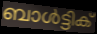
ബാൾട്ടിക്